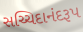
સચ્ચિદાનંદરૂપ